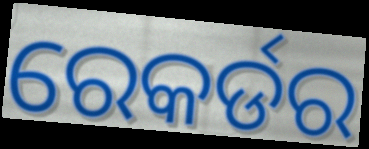
ରେକର୍ଡର